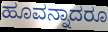
ಹೂವನ್ನಾದರೂ